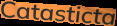
Catasticta